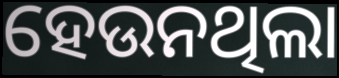
ହେଉନଥିଲା